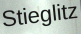
Stieglitz